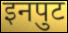
इनपुट